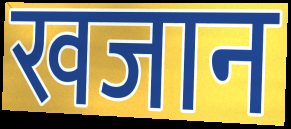
खजान